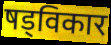
षड्‌विकार